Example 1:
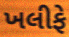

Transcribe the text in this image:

ખલીફે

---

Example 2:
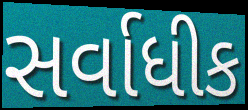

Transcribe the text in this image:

સર્વાધીક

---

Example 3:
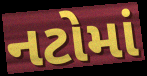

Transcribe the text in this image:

નટોમાં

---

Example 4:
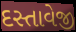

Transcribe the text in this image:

દસ્તાવેજી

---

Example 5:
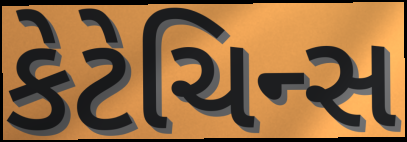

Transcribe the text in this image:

કેટેચિન્સ